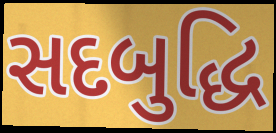
સદબુદ્ધિ